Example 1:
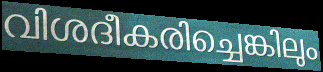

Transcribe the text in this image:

വിശദീകരിച്ചെങ്കിലും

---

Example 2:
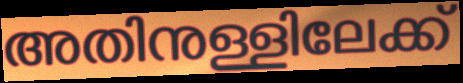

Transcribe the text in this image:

അതിനുള്ളിലേക്ക്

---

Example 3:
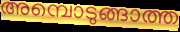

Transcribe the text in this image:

അമ്പൊടുങ്ങാത്ത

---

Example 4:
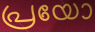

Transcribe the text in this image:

പ്രയോ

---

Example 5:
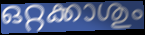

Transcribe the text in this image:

ഒറ്റക്കാശും